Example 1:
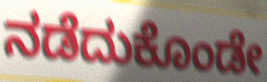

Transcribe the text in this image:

ನಡೆದುಕೊಂಡೇ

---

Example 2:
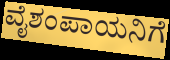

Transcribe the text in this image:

ವೈಶಂಪಾಯನಿಗೆ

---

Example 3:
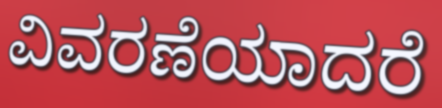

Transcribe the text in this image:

ವಿವರಣೆಯಾದರೆ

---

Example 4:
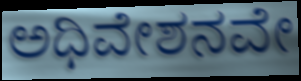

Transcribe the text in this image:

ಅಧಿವೇಶನವೇ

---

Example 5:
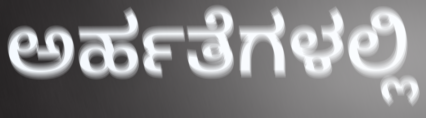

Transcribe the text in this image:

ಅರ್ಹತೆಗಳಲ್ಲಿ